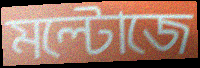
মল্টোজে